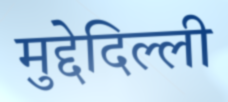
मुद्देदिल्ली